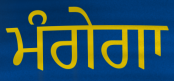
ਮੰਗੇਗਾ